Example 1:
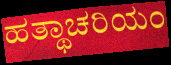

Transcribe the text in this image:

ಹತ್ಥಾಚರಿಯಂ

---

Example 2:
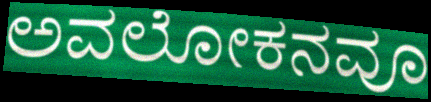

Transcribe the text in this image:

ಅವಲೋಕನವೂ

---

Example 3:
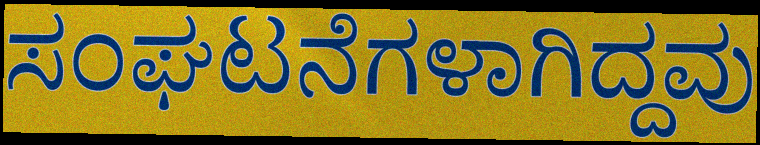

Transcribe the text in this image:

ಸಂಘಟನೆಗಳಾಗಿದ್ದವು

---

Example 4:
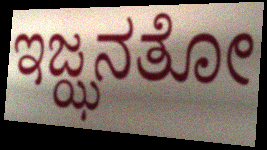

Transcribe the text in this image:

ಇಜ್ಝನತೋ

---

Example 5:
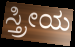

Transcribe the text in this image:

ಸ್ತ್ರೀಯ